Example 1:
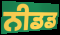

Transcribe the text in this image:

ਨੀਡਡ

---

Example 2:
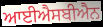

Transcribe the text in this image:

ਆਈਐਸਬੀਐਨ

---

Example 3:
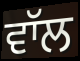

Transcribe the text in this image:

ਵਾੱਲ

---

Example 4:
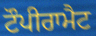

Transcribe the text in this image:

ਟੌਪੀਰਾਮੈਟ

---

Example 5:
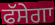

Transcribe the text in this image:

ਫੱਸੇਗਾ